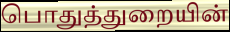
பொதுத்துறையின்